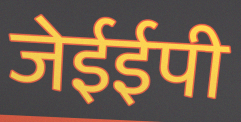
जेईईपी